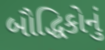
બૌદ્ધિકોનું